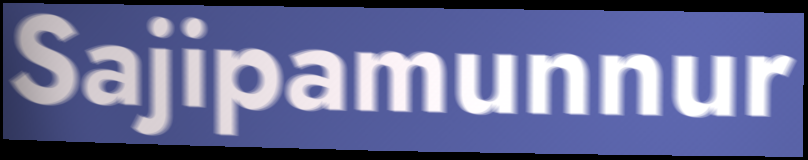
Sajipamunnur